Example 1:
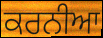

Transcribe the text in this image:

ਕਰਨੀਆ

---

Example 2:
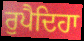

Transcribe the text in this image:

ਰੁਪੈਦਿਹਾ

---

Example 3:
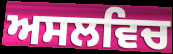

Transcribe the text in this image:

ਅਸਲਵਿਚ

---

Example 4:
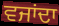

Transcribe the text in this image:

ਵਜਾਂਦਾ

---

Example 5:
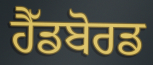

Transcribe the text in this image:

ਹੈੱਡਬੋਰਡ